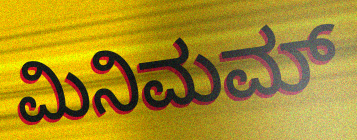
ಮಿನಿಮಮ್